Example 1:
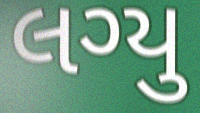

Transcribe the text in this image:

લગ્યુ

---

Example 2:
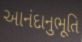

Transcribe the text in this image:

આનંદાનુભૂતિ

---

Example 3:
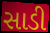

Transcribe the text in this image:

સાડી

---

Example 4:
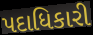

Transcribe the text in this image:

પદાધિકારી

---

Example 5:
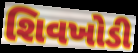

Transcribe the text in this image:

શિવખોડી